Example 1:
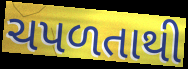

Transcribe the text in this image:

ચપળતાથી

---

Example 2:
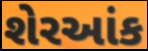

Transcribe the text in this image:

શેરઆંક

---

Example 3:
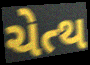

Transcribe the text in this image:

ચેત્થ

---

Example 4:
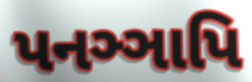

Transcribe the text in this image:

પનઞ્ઞાપિ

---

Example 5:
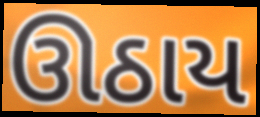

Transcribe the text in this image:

ઊઠાય